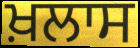
ਖ਼ਲਾਸ